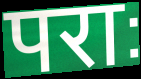
पराः